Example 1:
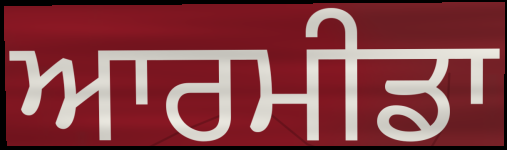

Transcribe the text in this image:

ਆਰਮੀਡਾ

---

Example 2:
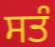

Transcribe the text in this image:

ਸਤੰ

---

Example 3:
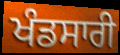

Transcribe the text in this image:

ਖੰਡਸਾਰੀ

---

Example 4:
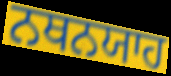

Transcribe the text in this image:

ਨਥਨਯਾਹ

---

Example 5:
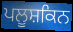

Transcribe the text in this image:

ਪਲੂਸ਼ਕਿਨ